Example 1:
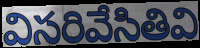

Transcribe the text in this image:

విసరివేసితివి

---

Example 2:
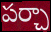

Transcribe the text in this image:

పర్చా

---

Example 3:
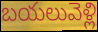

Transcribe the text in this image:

బయలువెళ్లి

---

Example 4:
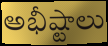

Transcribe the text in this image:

అభీష్టాలు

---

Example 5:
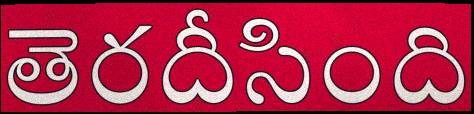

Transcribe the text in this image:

తెరదీసింది